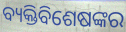
ବ୍ୟକ୍ତିବିଶେଷଙ୍କର